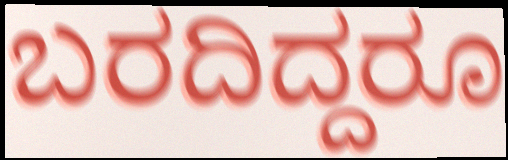
ಬರದಿದ್ದರೂ